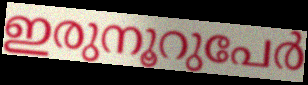
ഇരുനൂറുപേർ